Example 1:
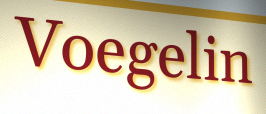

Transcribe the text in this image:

Voegelin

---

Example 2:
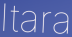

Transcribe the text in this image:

Itara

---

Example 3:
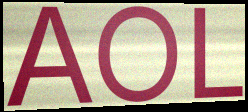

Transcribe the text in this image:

AOL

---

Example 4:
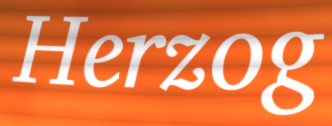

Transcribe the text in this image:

Herzog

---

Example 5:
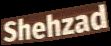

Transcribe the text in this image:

Shehzad